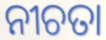
ନୀଚତା